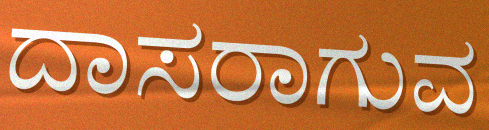
ದಾಸರಾಗುವ